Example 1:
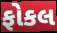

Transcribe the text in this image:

ફોકલ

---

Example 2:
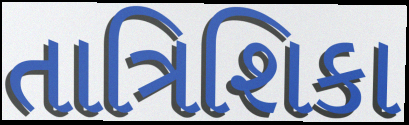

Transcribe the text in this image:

તાત્રિશિકા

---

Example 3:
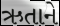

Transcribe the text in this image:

ઋતાને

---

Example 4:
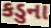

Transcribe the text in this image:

કડુના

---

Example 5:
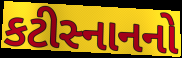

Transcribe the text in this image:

કટીસ્નાનનો